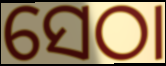
ସେଠା